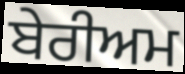
ਬੇਰੀਅਮ